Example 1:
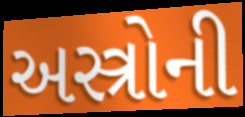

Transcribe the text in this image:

અસ્ત્રોની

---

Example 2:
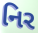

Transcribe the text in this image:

નિર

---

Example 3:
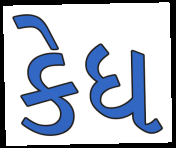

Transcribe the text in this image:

કેધ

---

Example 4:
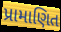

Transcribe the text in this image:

પ્રામાણિત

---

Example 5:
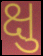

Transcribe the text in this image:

ક્ષુ